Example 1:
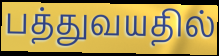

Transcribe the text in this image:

பத்துவயதில்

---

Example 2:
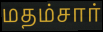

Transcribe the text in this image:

மதம்சார்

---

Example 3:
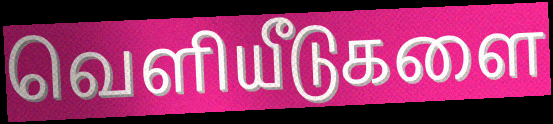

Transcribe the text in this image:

வெளியீடுகளை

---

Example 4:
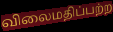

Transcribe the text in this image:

விலைமதிப்பற்ற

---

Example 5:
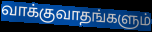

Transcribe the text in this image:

வாக்குவாதங்களும்